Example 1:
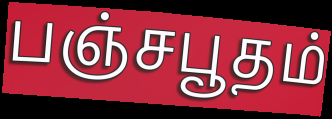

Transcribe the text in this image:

பஞ்சபூதம்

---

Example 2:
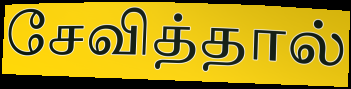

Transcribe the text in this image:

சேவித்தால்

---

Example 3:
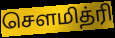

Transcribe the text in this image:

சௌமித்ரி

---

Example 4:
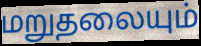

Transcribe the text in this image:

மறுதலையும்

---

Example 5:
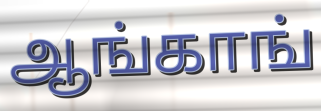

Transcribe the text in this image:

ஆங்காங்